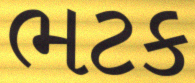
ભટક